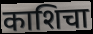
काशिचा